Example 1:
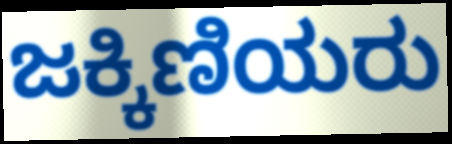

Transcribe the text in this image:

ಜಕ್ಕಿಣಿಯರು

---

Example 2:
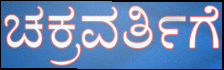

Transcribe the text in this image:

ಚಕ್ರವರ್ತಿಗೆ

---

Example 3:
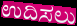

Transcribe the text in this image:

ಉದಿಸಲು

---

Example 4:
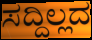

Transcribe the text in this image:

ಸದ್ದಿಲ್ಲದ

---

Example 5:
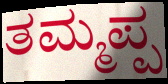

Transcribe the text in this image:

ತಮ್ಮಪ್ಪ